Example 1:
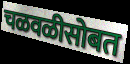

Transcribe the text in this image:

चळवळीसोबत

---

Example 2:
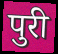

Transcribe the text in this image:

पुरी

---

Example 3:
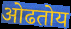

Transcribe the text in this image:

ओढतोय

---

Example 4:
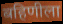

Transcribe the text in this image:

बहिणीला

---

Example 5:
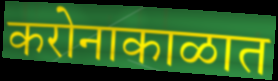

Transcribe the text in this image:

करोनाकाळात